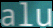
alu